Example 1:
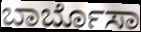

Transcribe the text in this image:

ಬಾರ್ಬೊಸಾ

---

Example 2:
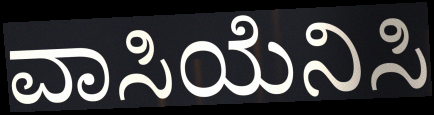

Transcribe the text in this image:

ವಾಸಿಯೆನಿಸಿ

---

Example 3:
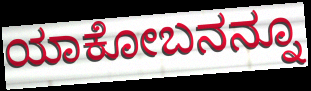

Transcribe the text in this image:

ಯಾಕೋಬನನ್ನೂ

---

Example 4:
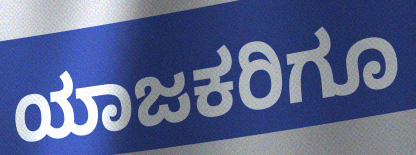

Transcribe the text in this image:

ಯಾಜಕರಿಗೂ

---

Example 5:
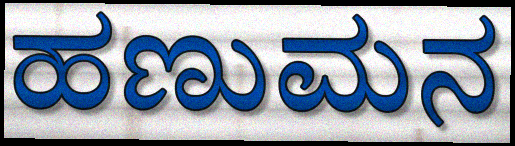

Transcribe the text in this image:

ಹಣುಮನ